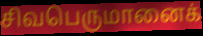
சிவபெருமானைக்